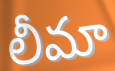
లీమా